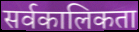
सर्वकालिकता